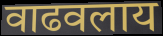
वाढवलाय